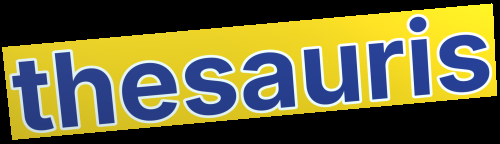
thesauris